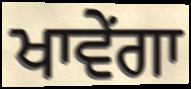
ਖਾਵੇਂਗਾ